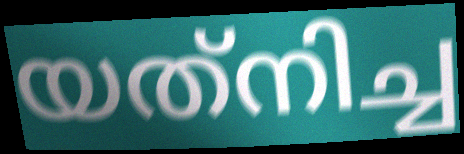
യത്‌നിച്ച